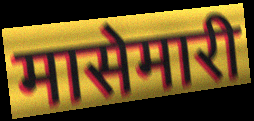
मासेमारी